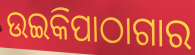
ଉଇକିପାଠାଗାର